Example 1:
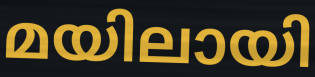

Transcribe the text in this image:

മയിലായി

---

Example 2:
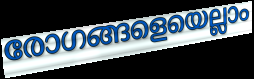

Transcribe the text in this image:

രോഗങ്ങളെയെല്ലാം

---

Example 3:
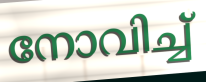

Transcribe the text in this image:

നോവിച്ച്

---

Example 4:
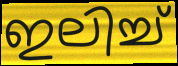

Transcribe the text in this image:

ഇലിച്ച്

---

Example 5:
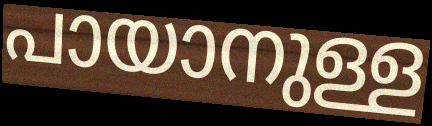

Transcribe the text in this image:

പായാനുള്ള